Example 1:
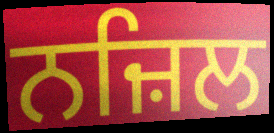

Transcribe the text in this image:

ਨਜ਼ਿਲ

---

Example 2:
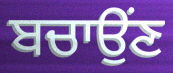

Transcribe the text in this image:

ਬਚਾਉਂਣ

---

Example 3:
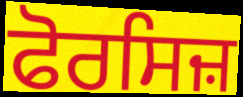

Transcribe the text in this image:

ਫੋਰਸਿਜ਼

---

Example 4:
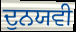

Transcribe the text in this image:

ਦੁਨਯਵੀ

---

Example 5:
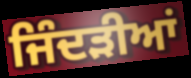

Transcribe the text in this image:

ਜਿੰਦੜੀਆਂ